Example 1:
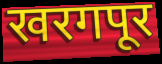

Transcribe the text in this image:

खरगपूर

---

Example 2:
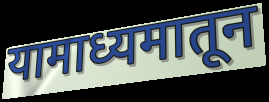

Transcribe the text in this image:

यामाध्यमातून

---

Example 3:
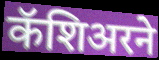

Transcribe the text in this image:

कॅशिअरने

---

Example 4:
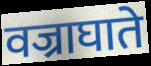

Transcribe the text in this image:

वज्राघाते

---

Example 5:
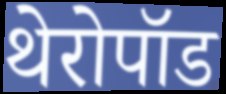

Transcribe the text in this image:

थेरोपॉड